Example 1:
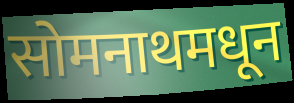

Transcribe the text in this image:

सोमनाथमधून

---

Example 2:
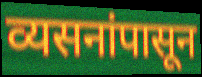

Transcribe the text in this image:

व्यसनांपासून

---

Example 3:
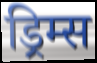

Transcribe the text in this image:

ड्रिम्स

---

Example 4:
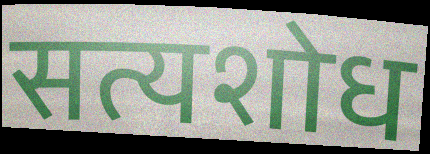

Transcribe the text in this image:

सत्यशोध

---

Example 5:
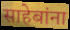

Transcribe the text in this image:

साहेबांना